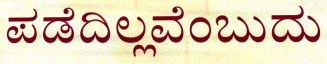
ಪಡೆದಿಲ್ಲವೆಂಬುದು